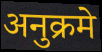
अनुक्रमे